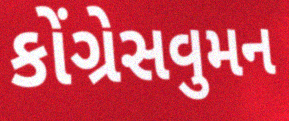
કોંગ્રેસવુમન